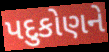
પદુકોણને